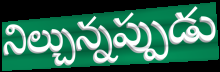
నిల్చున్నప్పుడు